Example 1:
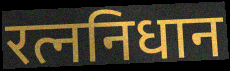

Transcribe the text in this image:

रत्ननिधान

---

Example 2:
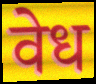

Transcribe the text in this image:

वेध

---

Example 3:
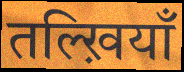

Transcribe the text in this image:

तल्ख़ियाँ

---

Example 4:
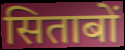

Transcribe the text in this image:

सिताबों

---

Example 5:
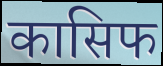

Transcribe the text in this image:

कासिफ